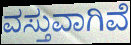
ವಸ್ತುವಾಗಿವೆ